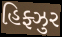
હિફ્ઝુર